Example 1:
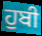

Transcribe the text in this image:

ਹੁਬੀ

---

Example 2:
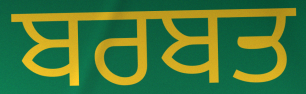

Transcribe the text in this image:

ਬਰਬਤ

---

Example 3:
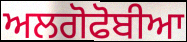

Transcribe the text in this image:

ਅਲਗੋਫੋਬੀਆ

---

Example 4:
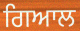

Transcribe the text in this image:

ਗਿਆਲ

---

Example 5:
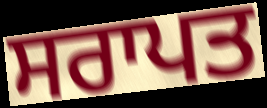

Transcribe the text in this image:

ਸਰਾਪਤ